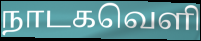
நாடகவெளி